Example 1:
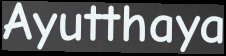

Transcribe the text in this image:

Ayutthaya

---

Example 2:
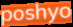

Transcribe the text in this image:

poshyo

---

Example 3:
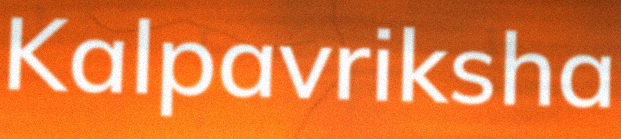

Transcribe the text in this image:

Kalpavriksha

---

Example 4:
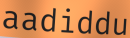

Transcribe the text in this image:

aadiddu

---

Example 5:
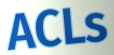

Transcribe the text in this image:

ACLs